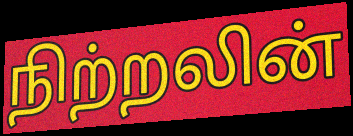
நிற்றலின்